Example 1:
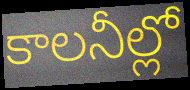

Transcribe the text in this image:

కాలనీల్లో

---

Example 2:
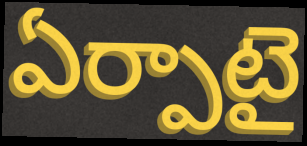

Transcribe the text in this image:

ఏర్పాటై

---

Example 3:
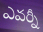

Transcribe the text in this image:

ఎవర్నీ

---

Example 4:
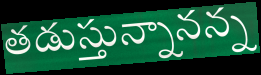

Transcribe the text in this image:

తడుస్తున్నానన్న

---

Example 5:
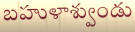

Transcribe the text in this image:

బహుళాశ్వుండు